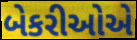
બેકરીઓએ